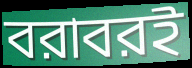
বরাবরই